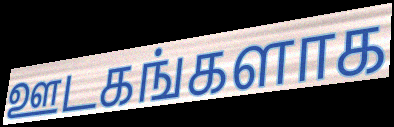
ஊடகங்களாக